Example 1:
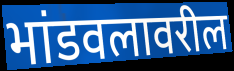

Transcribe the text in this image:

भांडवलावरील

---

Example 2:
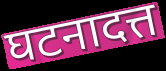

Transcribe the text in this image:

घटनादत्त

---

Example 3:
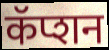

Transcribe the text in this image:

कॅप्शन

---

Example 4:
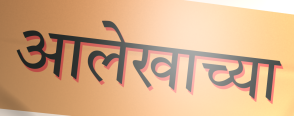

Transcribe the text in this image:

आलेखाच्या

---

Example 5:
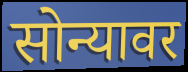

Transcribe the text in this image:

सोन्यावर